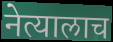
नेत्यालाच